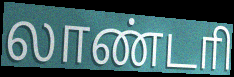
லாண்டரி